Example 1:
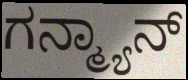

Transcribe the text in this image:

ಗನ್ಮ್ಯಾನ್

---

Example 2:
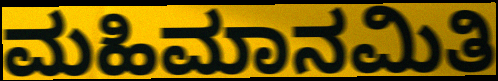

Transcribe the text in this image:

ಮಹಿಮಾನಮಿತಿ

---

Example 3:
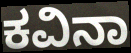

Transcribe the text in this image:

ಕವಿನಾ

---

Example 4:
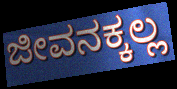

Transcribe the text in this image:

ಜೀವನಕ್ಕಲ್ಲ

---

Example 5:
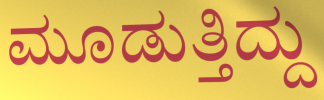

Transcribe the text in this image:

ಮೂಡುತ್ತಿದ್ದು